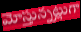
మోస్తున్నట్లుగా